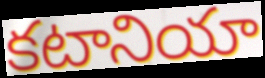
కటానియా